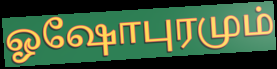
ஓஷோபுரமும்